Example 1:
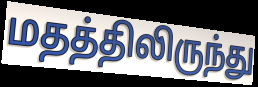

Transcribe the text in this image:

மதத்திலிருந்து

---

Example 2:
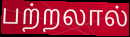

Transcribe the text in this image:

பற்றலால்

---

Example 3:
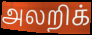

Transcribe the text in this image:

அலறிக்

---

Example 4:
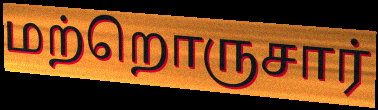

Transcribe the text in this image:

மற்றொருசார்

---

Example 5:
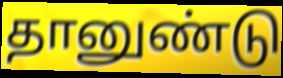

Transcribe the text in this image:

தானுண்டு